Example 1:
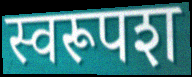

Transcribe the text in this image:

स्वरूपश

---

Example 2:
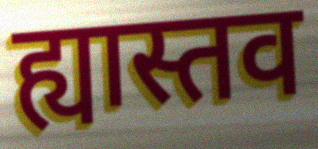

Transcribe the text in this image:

ह्यास्तव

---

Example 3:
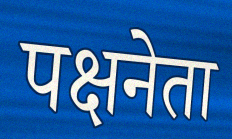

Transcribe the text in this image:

पक्षनेता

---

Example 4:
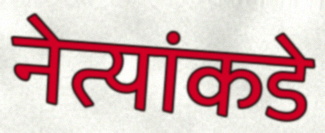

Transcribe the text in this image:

नेत्यांकडे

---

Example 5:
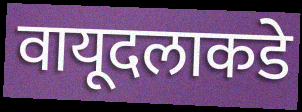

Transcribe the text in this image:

वायूदलाकडे